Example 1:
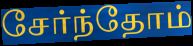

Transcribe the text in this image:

சேர்ந்தோம்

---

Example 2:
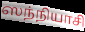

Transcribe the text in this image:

ஸந்நியாசி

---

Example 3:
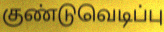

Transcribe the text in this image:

குண்டுவெடிப்பு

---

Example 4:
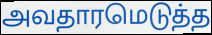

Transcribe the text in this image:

அவதாரமெடுத்த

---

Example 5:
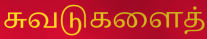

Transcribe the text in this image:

சுவடுகளைத்